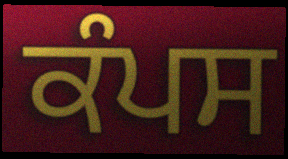
ਕੰਪਸ